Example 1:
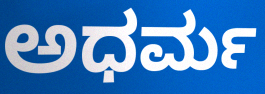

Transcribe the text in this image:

ಅಧರ್ಮ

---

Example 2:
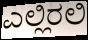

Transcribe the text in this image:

ಎಲ್ಲಿರಲಿ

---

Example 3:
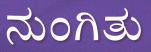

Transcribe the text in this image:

ನುಂಗಿತು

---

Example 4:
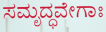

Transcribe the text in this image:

ಸಮೃದ್ಧವೇಗಾಃ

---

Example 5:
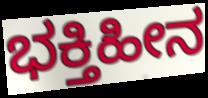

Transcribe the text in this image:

ಭಕ್ತಿಹೀನ